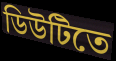
ডিউটিতে